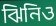
ঝিনিও